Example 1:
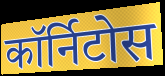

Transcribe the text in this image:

कॉर्निटोस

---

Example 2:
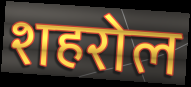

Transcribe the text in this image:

शहरोल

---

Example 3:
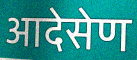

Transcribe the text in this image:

आदेसेण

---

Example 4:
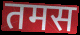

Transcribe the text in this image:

तमस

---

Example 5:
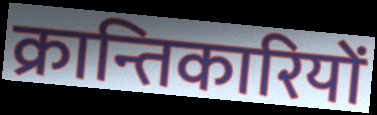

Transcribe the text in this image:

क्रान्तिकारियों